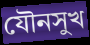
যৌনসুখ